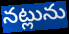
నట్లును